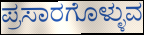
ಪ್ರಸಾರಗೊಳ್ಳುವ